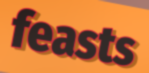
feasts